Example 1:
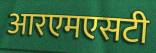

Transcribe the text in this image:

आरएमएसटी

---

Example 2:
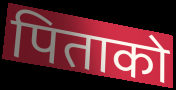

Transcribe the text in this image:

पिताको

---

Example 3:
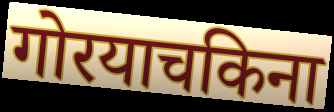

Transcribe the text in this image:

गोरयाचकिना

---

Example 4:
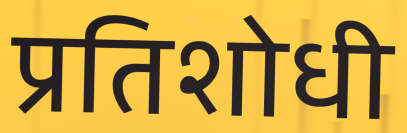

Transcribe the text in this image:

प्रतिशोधी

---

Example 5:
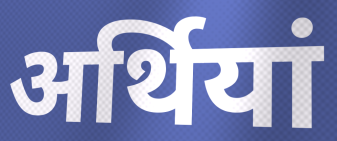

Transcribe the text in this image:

अर्थियां